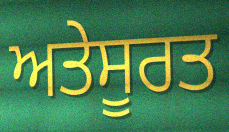
ਅਤੇਸੂਰਤ